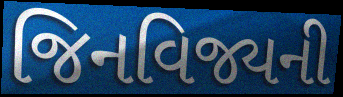
જિનવિજ્યની